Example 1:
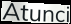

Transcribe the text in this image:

Atunci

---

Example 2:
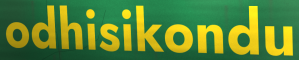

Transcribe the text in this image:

odhisikondu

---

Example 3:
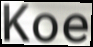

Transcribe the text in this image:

Koe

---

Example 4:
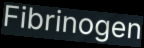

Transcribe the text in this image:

Fibrinogen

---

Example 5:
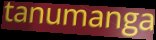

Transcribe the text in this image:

tanumanga